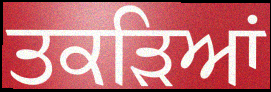
ਤਕੜਿਆਂ